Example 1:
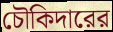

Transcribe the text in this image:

চৌকিদারের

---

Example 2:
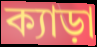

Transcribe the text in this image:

ক্যাড়া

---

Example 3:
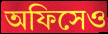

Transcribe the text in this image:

অফিসেও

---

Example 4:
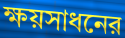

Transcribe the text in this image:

ক্ষয়সাধনের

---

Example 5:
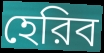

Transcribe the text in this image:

হেরিব